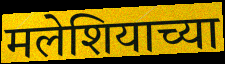
मलेशियाच्या